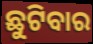
ଛୁଟିବାର